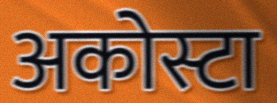
अकोस्टा